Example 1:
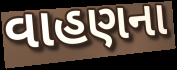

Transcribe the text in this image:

વાહણના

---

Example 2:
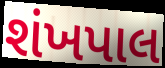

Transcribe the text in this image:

શંખપાલ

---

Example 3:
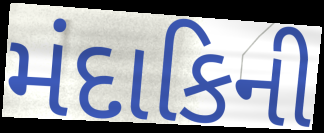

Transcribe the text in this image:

મંદાકિની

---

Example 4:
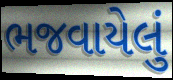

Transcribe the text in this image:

ભજવાયેલું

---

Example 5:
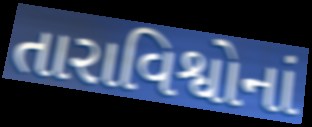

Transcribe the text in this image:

તારાવિશ્વોનાં